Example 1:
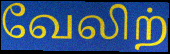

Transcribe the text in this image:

வேலிற்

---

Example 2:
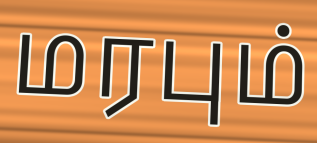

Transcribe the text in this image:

மரபும்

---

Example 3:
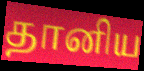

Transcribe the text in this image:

தானிய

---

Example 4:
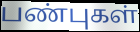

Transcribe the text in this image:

பண்புகள்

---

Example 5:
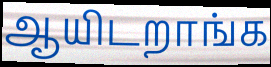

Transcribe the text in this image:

ஆயிடறாங்க